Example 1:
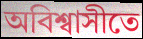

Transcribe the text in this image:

অবিশ্বাসীতে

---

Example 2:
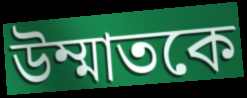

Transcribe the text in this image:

উম্মাতকে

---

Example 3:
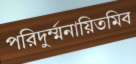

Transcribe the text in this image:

পরিদুর্ম্মনায়িতমিব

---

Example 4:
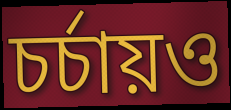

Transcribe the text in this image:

চর্চায়ও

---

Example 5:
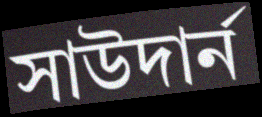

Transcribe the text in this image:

সাউদার্ন